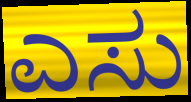
ಎಸು